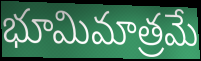
భూమిమాత్రమే